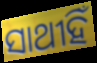
ସାଥୀହିଁ